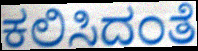
ಕಲಿಸಿದಂತೆ